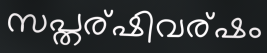
സപ്തര്ഷിവര്ഷം